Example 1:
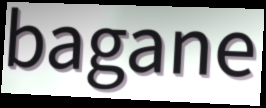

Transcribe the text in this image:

bagane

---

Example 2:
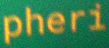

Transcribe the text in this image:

pheri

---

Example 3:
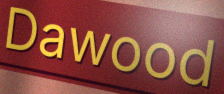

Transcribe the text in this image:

Dawood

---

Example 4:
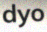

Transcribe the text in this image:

dyo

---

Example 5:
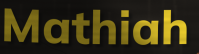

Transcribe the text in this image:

Mathiah